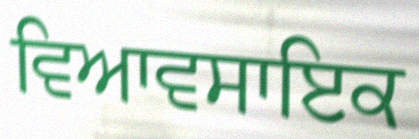
ਵਿਆਵਸਾਇਕ